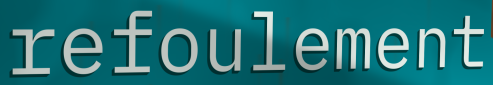
refoulement